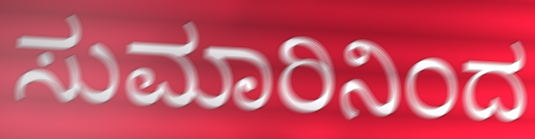
ಸುಮಾರಿನಿಂದ